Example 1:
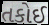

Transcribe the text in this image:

તકોઈ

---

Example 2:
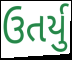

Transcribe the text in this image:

ઉતર્યુ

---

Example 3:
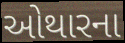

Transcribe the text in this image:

ઓથારના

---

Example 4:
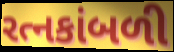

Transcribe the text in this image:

રત્નકાંબળી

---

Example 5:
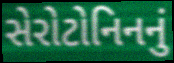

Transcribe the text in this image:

સેરોટોનિનનું